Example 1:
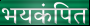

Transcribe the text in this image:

भयकंपित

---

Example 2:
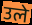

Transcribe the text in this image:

उले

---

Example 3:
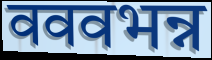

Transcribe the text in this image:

वववभन्न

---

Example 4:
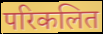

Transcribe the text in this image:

परिकलित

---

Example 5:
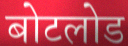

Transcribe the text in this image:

बोटलोड